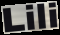
Lili